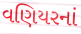
વણિયરનાં